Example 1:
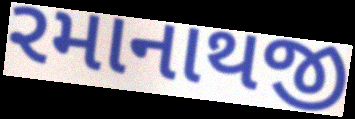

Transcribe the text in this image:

રમાનાથજી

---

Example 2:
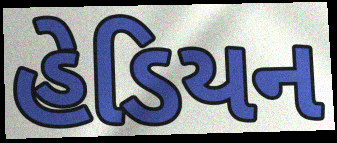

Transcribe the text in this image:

હેડિયન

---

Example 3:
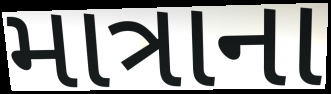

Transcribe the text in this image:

માત્રાના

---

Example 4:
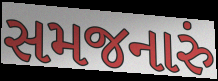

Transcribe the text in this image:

સમજનારું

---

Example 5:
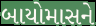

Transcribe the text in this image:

બાયોમાસને